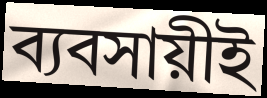
ব্যবসায়ীই